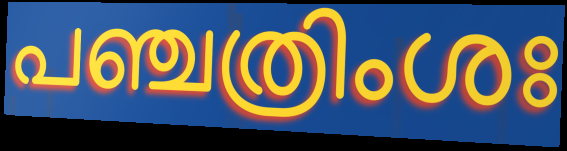
പഞ്ചത്രിംശഃ